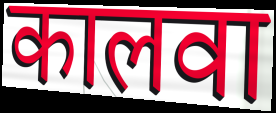
कालवा